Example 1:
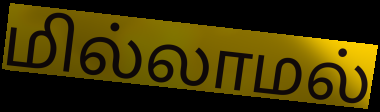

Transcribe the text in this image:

மில்லாமல்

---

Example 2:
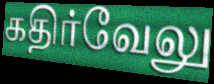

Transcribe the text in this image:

கதிர்வேலு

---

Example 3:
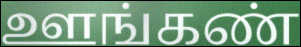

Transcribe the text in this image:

ஊங்கண்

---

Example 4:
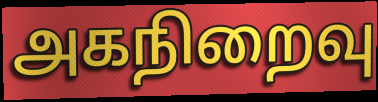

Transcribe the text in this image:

அகநிறைவு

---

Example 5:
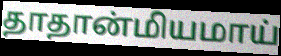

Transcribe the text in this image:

தாதான்மியமாய்